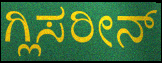
ಗ್ಲಿಸರೀನ್